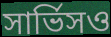
সার্ভিসও